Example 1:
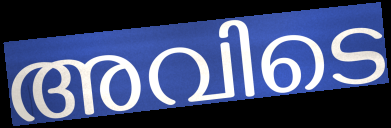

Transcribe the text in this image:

അവിടെ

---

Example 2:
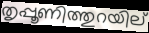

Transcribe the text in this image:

തൃപ്പൂണിത്തുറയില്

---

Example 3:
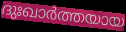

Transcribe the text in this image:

ദുഃഖാർത്തയായ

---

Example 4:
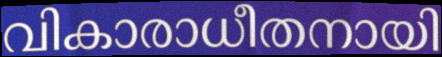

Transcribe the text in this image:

വികാരാധീതനായി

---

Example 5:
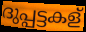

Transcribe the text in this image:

ദുപ്പട്ടകള്